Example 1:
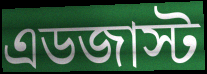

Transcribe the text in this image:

এডজাস্ট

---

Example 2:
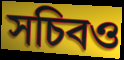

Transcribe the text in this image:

সচিবও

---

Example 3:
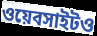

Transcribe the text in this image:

ওয়েবসাইটও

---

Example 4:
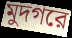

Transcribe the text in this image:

মুদগরে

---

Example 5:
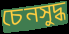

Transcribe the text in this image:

চেনসুদ্ধ